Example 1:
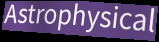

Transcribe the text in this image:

Astrophysical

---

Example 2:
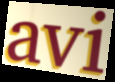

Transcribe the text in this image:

avi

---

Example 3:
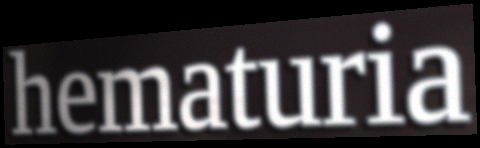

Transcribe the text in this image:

hematuria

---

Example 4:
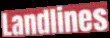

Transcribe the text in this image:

Landlines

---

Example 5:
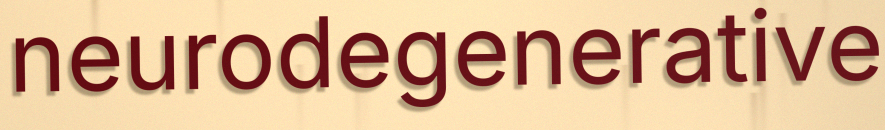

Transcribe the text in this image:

neurodegenerative